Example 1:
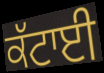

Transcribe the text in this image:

ਕੱਟਾਈ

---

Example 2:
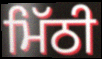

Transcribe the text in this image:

ਮਿੱਠੀ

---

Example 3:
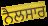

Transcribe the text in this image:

ਨੈਲਸਾਰ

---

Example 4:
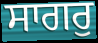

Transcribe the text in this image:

ਸਾਗਰੁ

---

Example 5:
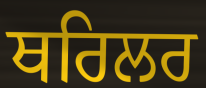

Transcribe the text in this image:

ਥਰਿਲਰ